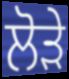
ਲੋੜੇ